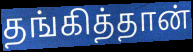
தங்கித்தான்